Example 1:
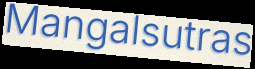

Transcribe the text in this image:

Mangalsutras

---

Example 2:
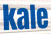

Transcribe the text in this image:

kale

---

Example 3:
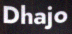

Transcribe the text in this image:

Dhajo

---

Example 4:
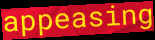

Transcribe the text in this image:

appeasing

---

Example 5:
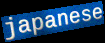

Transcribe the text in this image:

japanese